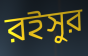
রইসুর